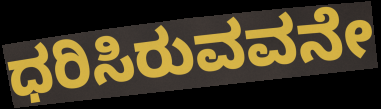
ಧರಿಸಿರುವವನೇ